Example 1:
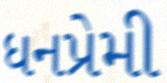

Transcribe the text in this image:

ધનપ્રેમી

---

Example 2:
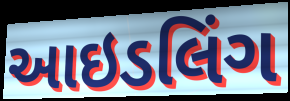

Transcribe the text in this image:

આઇડલિંગ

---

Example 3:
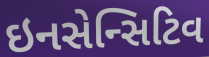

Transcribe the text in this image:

ઇનસેન્સિટિવ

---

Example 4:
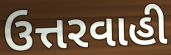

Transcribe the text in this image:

ઉત્તરવાહી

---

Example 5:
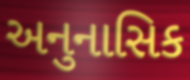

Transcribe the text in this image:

અનુનાસિક